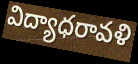
విద్యాధరావళి